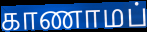
காணாமப்